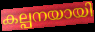
കല്പനയായി